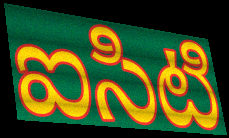
ఐసిటి